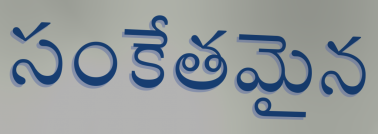
సంకేతమైన